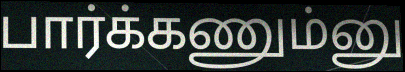
பார்க்கணும்னு